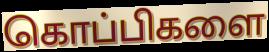
கொப்பிகளை